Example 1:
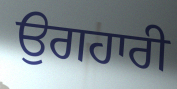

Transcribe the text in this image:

ਉਗਹਾਰੀ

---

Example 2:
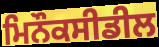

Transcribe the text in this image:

ਮਿਨੌਕਸੀਡੀਲ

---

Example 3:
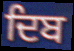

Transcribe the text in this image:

ਦਿਬ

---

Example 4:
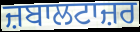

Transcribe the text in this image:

ਜ਼ਬਾਲਟਾਜ਼ਰ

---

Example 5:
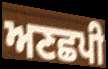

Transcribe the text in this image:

ਅਣਛਪੀ